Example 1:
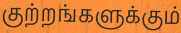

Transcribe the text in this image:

குற்றங்களுக்கும்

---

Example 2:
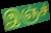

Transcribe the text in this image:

இஞ்ச்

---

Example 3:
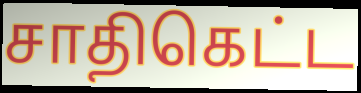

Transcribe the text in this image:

சாதிகெட்ட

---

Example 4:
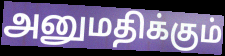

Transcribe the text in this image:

அனுமதிக்கும்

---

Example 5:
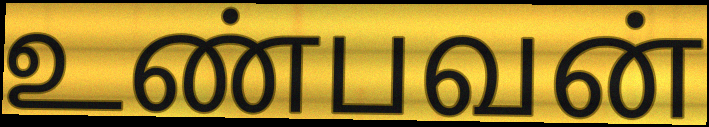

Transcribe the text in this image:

உண்பவன்